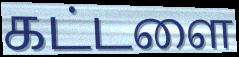
கட்டளை